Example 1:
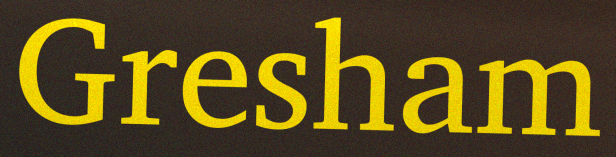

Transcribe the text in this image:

Gresham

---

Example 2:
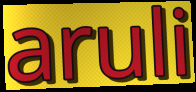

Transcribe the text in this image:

aruli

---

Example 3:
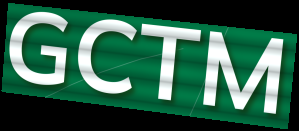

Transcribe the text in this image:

GCTM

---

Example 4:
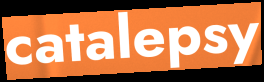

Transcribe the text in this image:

catalepsy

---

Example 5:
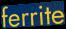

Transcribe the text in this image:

ferrite